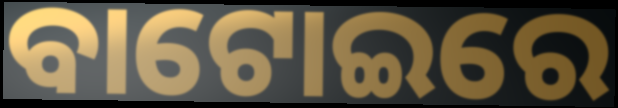
ବାଟୋଇରେ